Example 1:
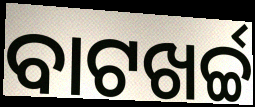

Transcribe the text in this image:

ବାଟଖର୍ଚ୍ଚ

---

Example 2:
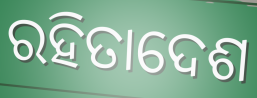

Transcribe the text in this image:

ରହିତାଦେଶ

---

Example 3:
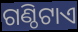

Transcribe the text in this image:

ଗଣ୍ଠିଟାଏ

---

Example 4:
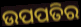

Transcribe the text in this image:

ଉପପତିର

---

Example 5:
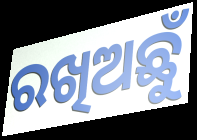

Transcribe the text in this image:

ରଖିଅଛୁଁ